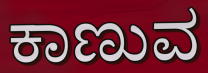
ಕಾಣುವ